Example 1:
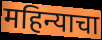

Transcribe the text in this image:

महिन्याचा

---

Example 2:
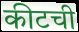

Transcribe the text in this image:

कीटची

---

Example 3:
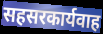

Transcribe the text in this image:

सहसरकार्यवाह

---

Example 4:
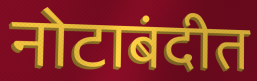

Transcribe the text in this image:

नोटाबंदीत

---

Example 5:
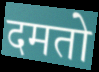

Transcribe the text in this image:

दमतो